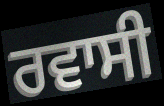
ਰਵਾਸੀ